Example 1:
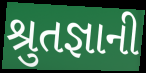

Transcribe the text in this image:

શ્રુતજ્ઞાની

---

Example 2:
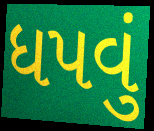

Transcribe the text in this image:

ધપવું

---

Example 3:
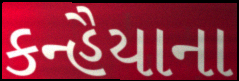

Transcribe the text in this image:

કન્હૈયાના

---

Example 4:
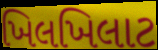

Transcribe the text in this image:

ખિલખિલાટ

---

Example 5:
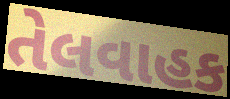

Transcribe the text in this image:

તેલવાહક